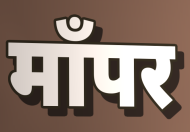
माँपर